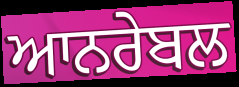
ਆਨਰੇਬਲ